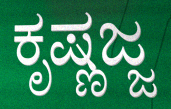
ಕೃಷ್ಣಜ್ಜ